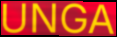
UNGA